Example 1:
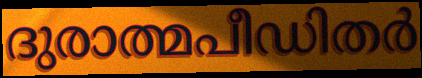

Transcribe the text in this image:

ദുരാത്മപീഡിതർ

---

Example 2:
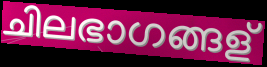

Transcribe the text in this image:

ചിലഭാഗങ്ങള്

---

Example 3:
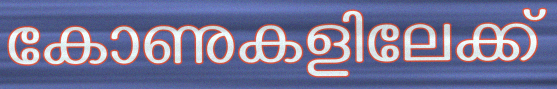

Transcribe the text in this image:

കോണുകളിലേക്ക്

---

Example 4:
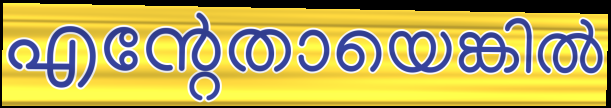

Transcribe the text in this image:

എന്റേതായെങ്കിൽ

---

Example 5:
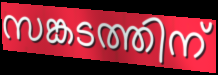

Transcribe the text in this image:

സങ്കടത്തിന്